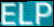
ELP